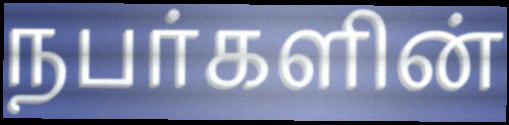
நபர்களின்